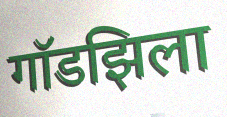
गॉडझिला